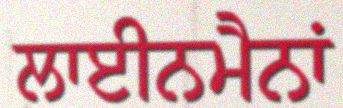
ਲਾਈਨਮੈਨਾਂ